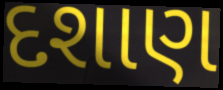
દશાણ